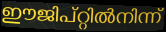
ഈജിപ്റ്റിൽനിന്ന്